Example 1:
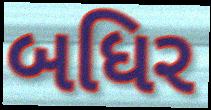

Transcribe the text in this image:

બધિર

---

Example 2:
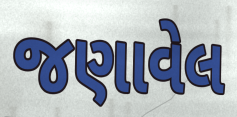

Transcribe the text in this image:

જણાવેલ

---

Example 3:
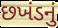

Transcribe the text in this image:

છખંડનું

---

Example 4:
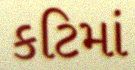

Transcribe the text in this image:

કટિમાં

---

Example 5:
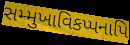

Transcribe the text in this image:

સમ્મુખાવિકપ્પનાપિ